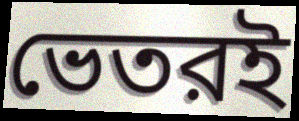
ভেতরই